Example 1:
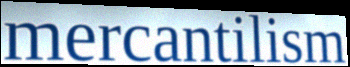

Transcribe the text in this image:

mercantilism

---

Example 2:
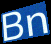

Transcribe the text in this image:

Bn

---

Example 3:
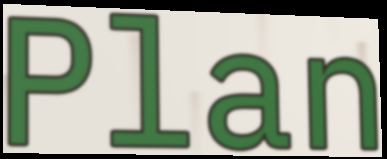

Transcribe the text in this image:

Plan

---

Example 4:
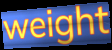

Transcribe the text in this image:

weight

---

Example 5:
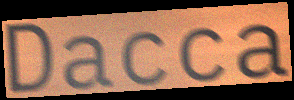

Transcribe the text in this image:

Dacca